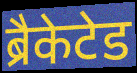
ब्रैकेटेड